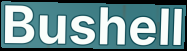
Bushell